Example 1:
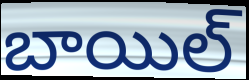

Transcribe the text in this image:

బాయిల్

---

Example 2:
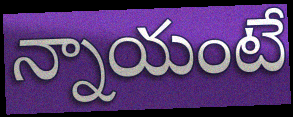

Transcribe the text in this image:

న్నాయంటే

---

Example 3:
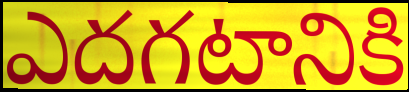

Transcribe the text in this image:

ఎదగటానికి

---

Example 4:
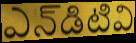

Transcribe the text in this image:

ఎన్‌డిటివి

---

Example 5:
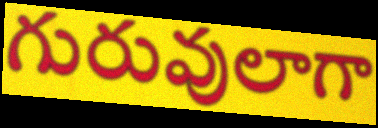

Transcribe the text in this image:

గురువులాగా